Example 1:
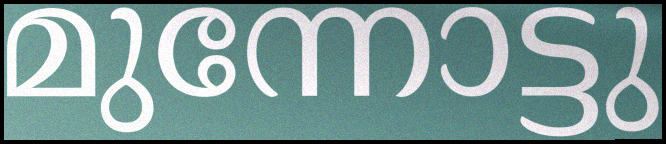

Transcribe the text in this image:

മുന്നോട്ടു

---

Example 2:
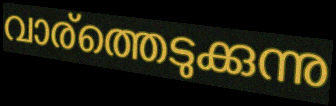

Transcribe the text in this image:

വാര്ത്തെടുക്കുന്നു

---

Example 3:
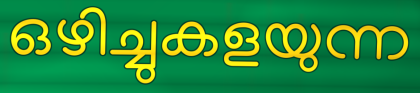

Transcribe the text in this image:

ഒഴിച്ചുകളയുന്ന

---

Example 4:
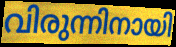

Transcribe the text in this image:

വിരുന്നിനായി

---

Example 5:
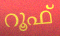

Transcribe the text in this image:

റൂഫ്